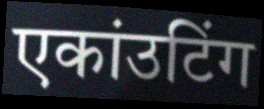
एकांउटिंग